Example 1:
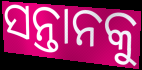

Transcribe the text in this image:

ସନ୍ତାନକୁ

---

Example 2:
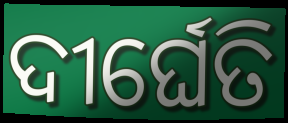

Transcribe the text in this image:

ଦୀର୍ଘେତି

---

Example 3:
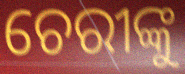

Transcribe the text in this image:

ଚେରୀଙ୍କୁ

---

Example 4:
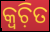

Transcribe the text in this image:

କ୍ୱଚ଼ିତ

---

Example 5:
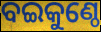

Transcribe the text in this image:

ବଇକୁଣ୍ଠେ